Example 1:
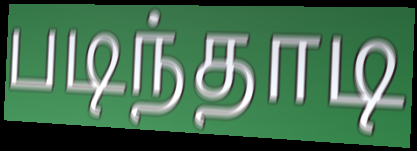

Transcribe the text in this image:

படிந்தாடி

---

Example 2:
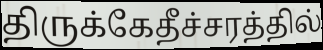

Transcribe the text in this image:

திருக்கேதீச்சரத்தில்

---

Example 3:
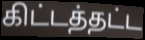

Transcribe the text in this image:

கிட்டத்தட்ட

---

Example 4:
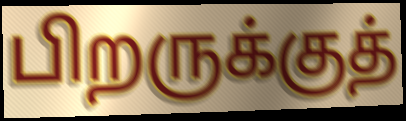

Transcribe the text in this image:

பிறருக்குத்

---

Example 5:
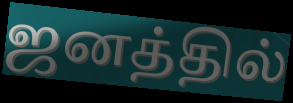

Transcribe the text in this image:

ஜனத்தில்